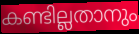
കണ്ടില്ലതാനും